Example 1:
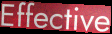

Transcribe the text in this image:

Effective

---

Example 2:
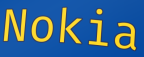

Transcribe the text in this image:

Nokia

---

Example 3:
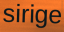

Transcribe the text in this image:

sirige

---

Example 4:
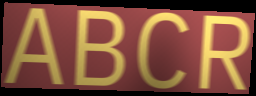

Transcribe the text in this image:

ABCR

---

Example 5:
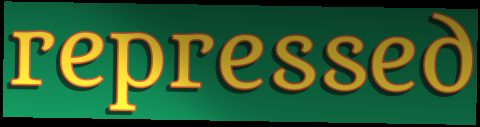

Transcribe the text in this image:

repressed